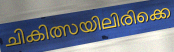
ചികിത്സയിലിരിക്കെ